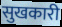
सुखकारी